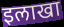
इलाखा